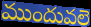
ముందువలె